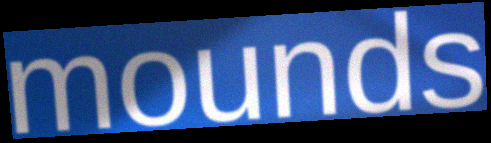
mounds